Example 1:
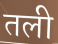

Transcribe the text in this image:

तली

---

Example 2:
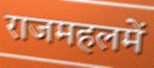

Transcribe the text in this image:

राजमहलमें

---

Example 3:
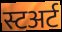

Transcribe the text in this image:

स्टअर्ट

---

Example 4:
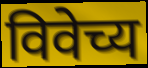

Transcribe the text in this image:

विवेच्य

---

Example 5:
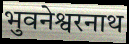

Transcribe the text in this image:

भुवनेश्वरनाथ